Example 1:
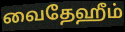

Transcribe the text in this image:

வைதேஹீம்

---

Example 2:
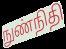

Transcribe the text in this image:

நுண்நிதி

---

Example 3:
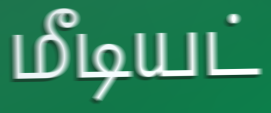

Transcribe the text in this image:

மீடியட்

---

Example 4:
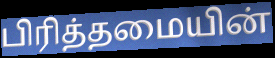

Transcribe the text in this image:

பிரித்தமையின்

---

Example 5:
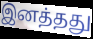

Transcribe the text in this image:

இனத்தது